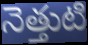
నెత్తుటి